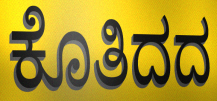
ಕೊತಿದದ